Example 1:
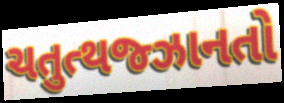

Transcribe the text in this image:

ચતુત્થજ્ઝાનતો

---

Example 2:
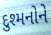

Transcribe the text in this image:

દુશ્મનોને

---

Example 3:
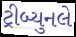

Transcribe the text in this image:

ટ્રીબ્યુનલે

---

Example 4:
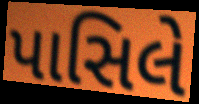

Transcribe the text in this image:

પાસિલે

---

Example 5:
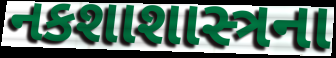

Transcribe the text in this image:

નકશાશાસ્ત્રના